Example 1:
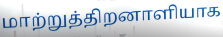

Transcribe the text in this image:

மாற்றுத்திறனாளியாக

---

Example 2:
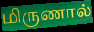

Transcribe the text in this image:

மிருணால்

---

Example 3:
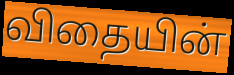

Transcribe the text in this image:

விதையின்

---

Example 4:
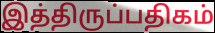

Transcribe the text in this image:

இத்திருப்பதிகம்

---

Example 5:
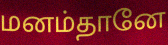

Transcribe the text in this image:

மனம்தானே